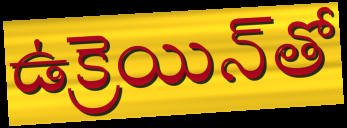
ఉక్రెయిన్‌తో